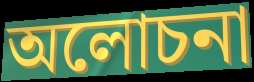
অলোচনা